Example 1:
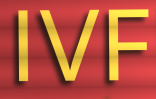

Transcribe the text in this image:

IVF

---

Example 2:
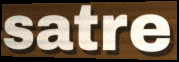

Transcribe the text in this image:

satre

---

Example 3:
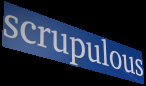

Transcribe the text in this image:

scrupulous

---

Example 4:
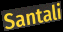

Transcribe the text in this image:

Santali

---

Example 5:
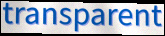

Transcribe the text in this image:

transparent